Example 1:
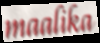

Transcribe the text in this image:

maalika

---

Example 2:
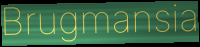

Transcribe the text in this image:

Brugmansia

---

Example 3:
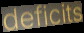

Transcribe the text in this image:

deficits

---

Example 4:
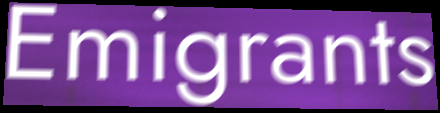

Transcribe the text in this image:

Emigrants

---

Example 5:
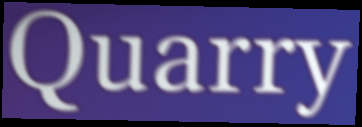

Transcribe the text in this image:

Quarry